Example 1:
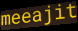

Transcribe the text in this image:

meeajit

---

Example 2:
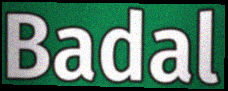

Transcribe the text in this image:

Badal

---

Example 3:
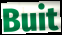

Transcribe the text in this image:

Buit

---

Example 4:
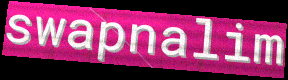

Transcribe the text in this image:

swapnalim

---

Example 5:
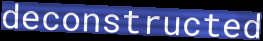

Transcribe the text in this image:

deconstructed